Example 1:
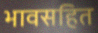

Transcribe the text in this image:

भावसहित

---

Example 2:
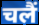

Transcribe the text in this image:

चलैं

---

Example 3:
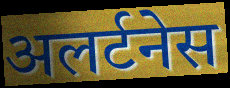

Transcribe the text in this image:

अलर्टनेस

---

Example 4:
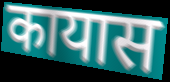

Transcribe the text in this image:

कायास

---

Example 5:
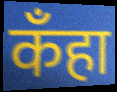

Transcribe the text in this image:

कँहा